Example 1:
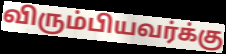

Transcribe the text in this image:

விரும்பியவர்க்கு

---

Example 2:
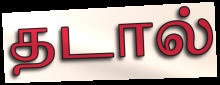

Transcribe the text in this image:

தடால்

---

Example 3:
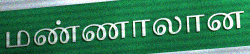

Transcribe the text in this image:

மண்ணாலான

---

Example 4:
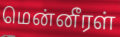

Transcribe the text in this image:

மென்னீரள்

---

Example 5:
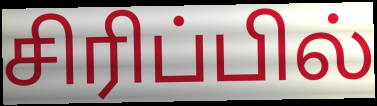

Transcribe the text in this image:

சிரிப்பில்